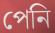
পেনি